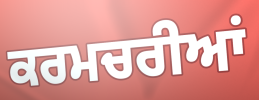
ਕਰਮਚਰੀਆਂ